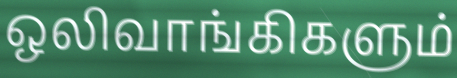
ஒலிவாங்கிகளும்